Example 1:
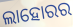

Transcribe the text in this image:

ଲାହୋରର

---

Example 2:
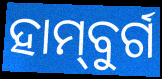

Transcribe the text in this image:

ହାମ୍‌ବୁର୍ଗ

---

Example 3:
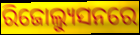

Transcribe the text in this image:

ରିଜୋଲ୍ୟୁସନରେ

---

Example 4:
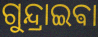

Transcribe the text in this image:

ଗୁନ୍ଦ୍ରାଇଵା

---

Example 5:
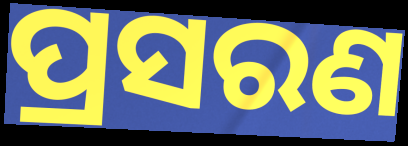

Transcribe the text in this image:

ପ୍ରସରଣ